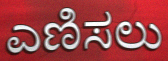
ಎಣಿಸಲು